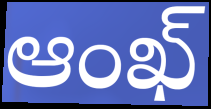
ఆంఖ్